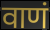
वाणं